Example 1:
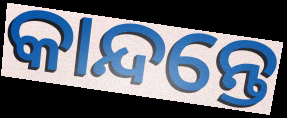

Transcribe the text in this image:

କାନ୍ଦନ୍ତେ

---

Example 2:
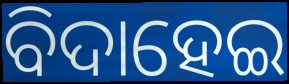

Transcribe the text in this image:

ବିଦାହେଇ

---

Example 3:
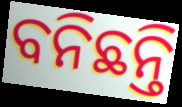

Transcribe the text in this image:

ବନିଛନ୍ତି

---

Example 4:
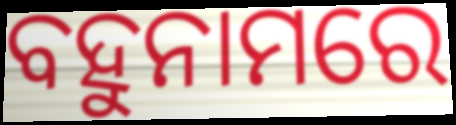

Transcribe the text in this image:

ବହୁନାମରେ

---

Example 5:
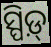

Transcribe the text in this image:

ସ୍ପିଡ଼୍